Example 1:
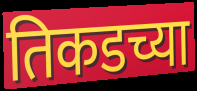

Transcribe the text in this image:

तिकडच्या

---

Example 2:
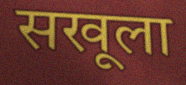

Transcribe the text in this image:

सखूला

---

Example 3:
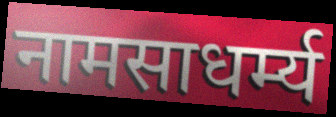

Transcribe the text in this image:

नामसाधर्म्य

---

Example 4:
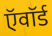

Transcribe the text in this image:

ऍवॉर्ड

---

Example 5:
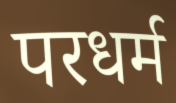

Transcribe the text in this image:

परधर्म